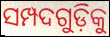
ସମ୍ପଦଗୁଡ଼ିକୁ